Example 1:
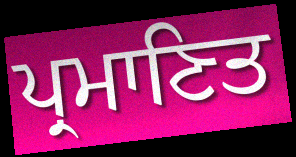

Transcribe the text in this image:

ਪ੍ਰਮਾਣਿਤ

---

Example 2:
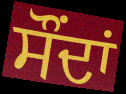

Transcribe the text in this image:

ਸੌਂਦਾਂ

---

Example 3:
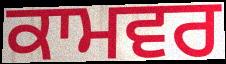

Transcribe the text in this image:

ਕਾਮਵਰ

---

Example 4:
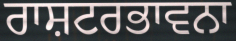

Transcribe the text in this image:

ਰਾਸ਼ਟਰਭਾਵਨਾ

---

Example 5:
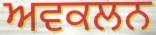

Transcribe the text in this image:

ਅਵਕਲਨ